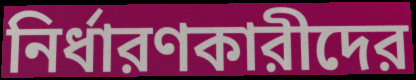
নির্ধারণকারীদের